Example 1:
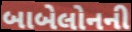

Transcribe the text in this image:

બાબેલોનની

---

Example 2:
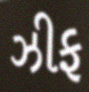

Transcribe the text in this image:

ઝીફ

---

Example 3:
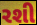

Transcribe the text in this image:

રશી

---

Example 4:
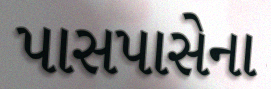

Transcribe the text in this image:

પાસપાસેના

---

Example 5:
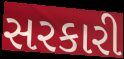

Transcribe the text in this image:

સરકારી